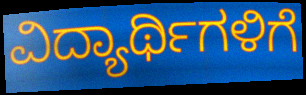
ವಿದ್ಯಾರ್ಥಿಗಳಿಗೆ